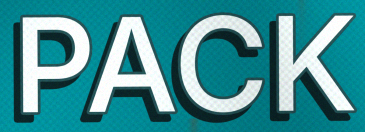
PACK